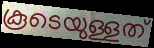
കൂടെയുള്ളത്